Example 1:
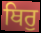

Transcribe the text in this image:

ਥਿਰੁ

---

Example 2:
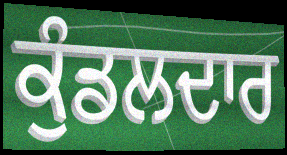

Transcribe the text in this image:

ਕੁੰਡਲਦਾਰ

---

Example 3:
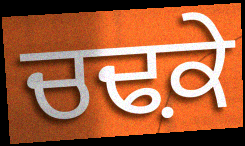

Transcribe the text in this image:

ਚਢ਼ਕੇ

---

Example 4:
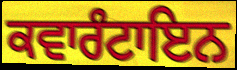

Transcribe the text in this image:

ਕਵਾਰੰਟਾਇਨ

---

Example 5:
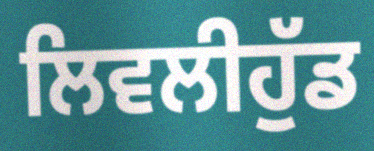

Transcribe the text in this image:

ਲਿਵਲੀਹੁੱਡ